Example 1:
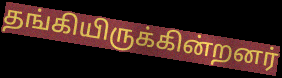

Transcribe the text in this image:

தங்கியிருக்கின்றனர்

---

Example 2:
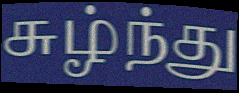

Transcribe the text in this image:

சுழ்ந்து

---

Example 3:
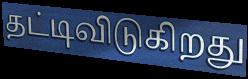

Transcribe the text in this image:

தட்டிவிடுகிறது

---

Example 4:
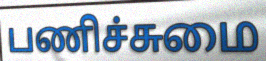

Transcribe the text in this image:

பணிச்சுமை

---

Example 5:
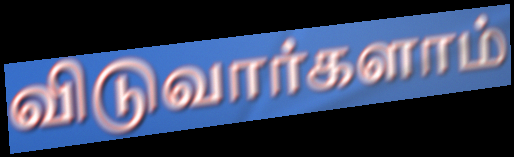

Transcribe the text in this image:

விடுவார்களாம்